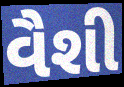
વૈશી